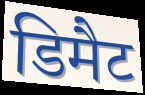
डिमैट